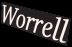
Worrell